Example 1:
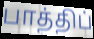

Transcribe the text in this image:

பாத்திப்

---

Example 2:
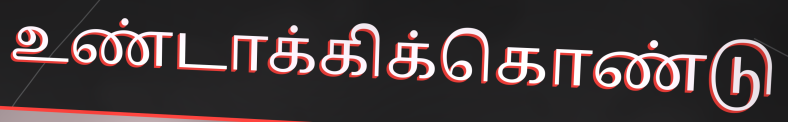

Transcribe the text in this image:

உண்டாக்கிக்கொண்டு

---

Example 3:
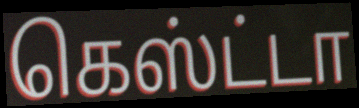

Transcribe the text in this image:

கெஸ்ட்டா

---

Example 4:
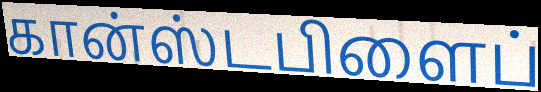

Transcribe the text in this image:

கான்ஸ்டபிளைப்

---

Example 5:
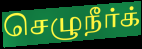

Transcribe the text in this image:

செழுநீர்க்